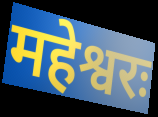
महेश्वरः